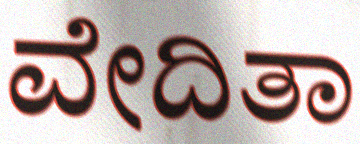
ವೇದಿತಾ